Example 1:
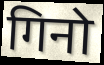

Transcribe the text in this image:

गिनो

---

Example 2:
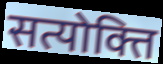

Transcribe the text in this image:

सत्योक्ति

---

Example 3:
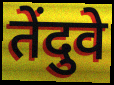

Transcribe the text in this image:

तेंदुवे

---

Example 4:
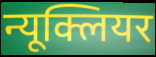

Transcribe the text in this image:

न्यूक्लियर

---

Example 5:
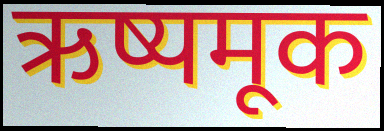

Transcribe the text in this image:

ऋष्यमूक